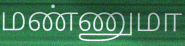
மண்ணுமா